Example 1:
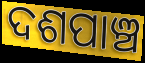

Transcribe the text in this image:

ଦଶପାଞ୍ଚ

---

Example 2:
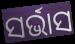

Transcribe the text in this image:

ସର୍ଭାସ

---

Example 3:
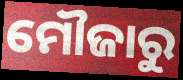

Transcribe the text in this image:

ମୌଜାରୁ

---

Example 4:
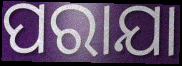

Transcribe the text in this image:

ପରାଯା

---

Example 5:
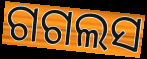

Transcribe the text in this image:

ଗଗଲସ